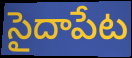
సైదాపేట